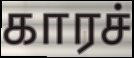
காரச்